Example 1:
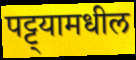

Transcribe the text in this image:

पट्ट्यामधील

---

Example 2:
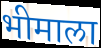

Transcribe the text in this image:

भीमाला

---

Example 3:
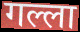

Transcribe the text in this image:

गल्ला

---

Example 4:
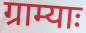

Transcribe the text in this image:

ग्राम्याः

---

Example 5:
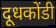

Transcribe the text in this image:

दूधकोंडी